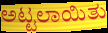
ಅಟ್ಟಲಾಯಿತು